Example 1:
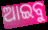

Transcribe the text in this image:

ଆଇବୁ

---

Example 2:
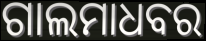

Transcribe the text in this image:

ଗାଲମାଧବର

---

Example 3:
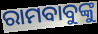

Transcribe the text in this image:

ରାମବାବୁଙ୍କୁ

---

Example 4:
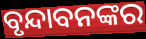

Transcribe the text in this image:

ବୃନ୍ଦାବନଙ୍କର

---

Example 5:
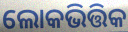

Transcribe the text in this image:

ଲୋକଭିତ୍ତିକ